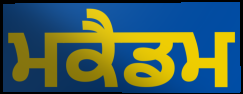
ਮਕੈਡਮ